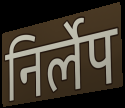
निर्लेप